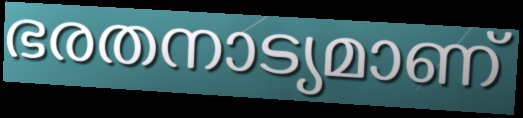
ഭരതനാട്യമാണ്